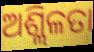
ଅଶ୍ଲିଳତା